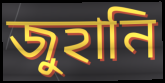
জুহানি